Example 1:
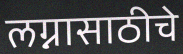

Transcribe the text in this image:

लग्नासाठीचे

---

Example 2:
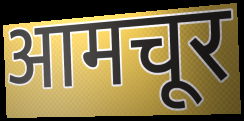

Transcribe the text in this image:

आमचूर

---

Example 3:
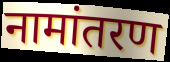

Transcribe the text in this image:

नामांतरण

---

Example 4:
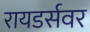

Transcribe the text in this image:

रायडर्सवर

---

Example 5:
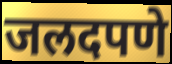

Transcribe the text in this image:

जलदपणे